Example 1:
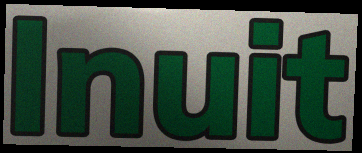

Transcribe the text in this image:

Inuit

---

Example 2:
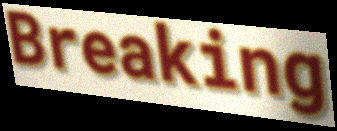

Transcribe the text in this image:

Breaking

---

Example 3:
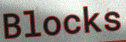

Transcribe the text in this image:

Blocks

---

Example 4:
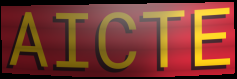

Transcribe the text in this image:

AICTE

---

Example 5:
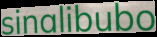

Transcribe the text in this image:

sinalibubo